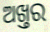
ଅଖ୍ତର